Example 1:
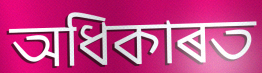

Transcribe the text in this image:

অধিকাৰত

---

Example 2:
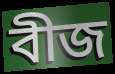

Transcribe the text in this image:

বীজ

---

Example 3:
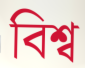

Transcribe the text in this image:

বিশ্ব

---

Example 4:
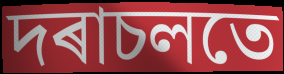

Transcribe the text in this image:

দৰাচলতে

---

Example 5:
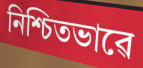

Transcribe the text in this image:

নিশ্চিতভাৱে